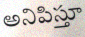
అనిపిస్తూ